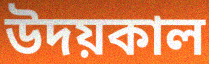
উদয়কাল